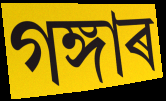
গঙ্গাৰ